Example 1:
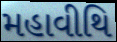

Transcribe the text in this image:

મહાવીથિ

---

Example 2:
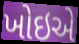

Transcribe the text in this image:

ખોઇએ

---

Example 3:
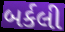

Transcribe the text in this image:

બર્કલી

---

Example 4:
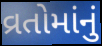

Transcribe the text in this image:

વ્રતોમાંનું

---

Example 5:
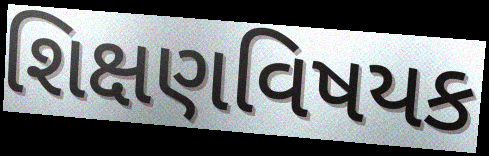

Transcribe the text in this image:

શિક્ષણવિષયક